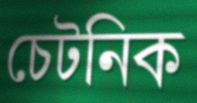
চেটনিক